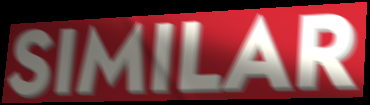
SIMILAR